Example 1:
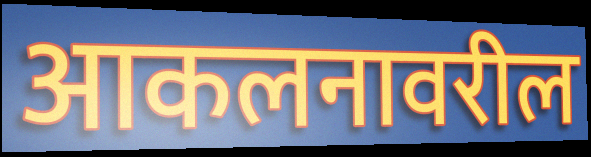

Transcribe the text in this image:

आकलनावरील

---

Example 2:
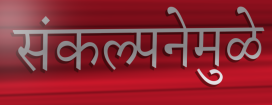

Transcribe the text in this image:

संकल्पनेमुळे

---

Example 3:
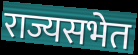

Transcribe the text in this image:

राज्यसभेत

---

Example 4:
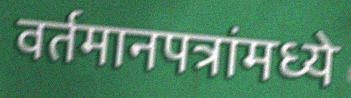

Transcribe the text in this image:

वर्तमानपत्रांमध्ये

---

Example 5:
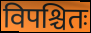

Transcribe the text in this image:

विपश्चितः